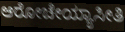
ಆರೋಚೇಯ್ಯಾಸೀತಿ